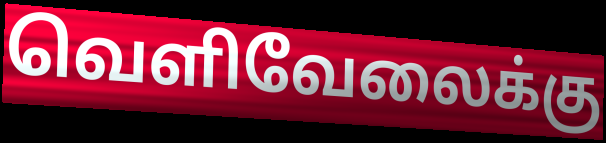
வெளிவேலைக்கு